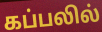
கப்பலில்